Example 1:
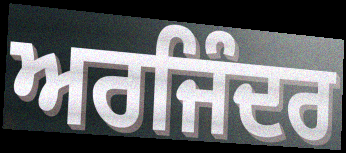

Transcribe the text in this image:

ਅਰਜਿੰਦਰ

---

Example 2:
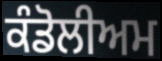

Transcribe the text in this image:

ਕੰਡੋਲੀਅਮ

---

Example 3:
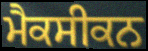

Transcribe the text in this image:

ਮੈਕਸੀਕਨ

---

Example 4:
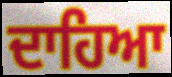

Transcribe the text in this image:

ਦਾਹਿਆ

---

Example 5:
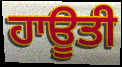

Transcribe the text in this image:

ਹਾਊਤੀ